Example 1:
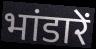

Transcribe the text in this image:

भांडारें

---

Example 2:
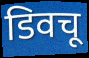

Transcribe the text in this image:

डिवचू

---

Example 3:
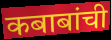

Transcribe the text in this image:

कबाबांची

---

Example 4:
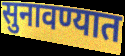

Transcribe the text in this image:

सुनावण्यात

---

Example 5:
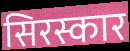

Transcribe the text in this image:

सिरस्कार